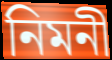
নিমনী